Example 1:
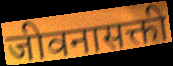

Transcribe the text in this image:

जीवनासक्ती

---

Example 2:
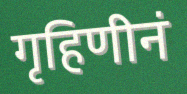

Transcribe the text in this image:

गृहिणीनं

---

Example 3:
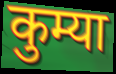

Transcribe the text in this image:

कुम्या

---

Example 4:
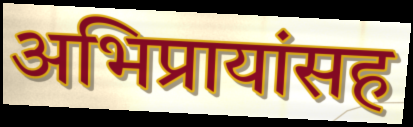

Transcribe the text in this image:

अभिप्रायांसह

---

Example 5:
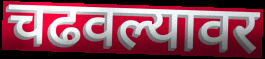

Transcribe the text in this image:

चढवल्यावर